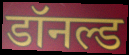
डॉनल्ड